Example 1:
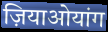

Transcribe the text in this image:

ज़ियाओयांग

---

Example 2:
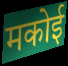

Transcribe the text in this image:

मकोई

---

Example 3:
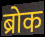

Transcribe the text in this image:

ब्रोक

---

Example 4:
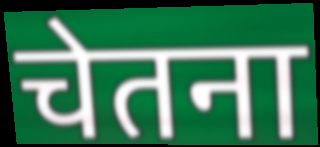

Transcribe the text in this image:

चेतना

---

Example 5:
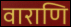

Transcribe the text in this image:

वाराणि